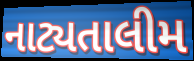
નાટ્યતાલીમ